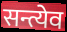
सन्त्येव